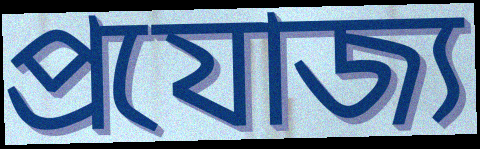
প্ৰযোজ্য